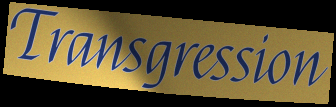
Transgression